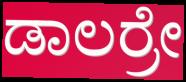
ಡಾಲರ್ರೇ